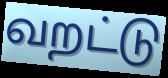
வறட்டு